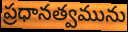
ప్రధానత్వమును